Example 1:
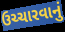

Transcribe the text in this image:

ઉચ્ચારવાનું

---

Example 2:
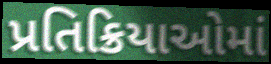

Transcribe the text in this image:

પ્રતિક્રિયાઓમાં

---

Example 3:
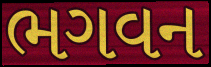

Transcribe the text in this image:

ભગવન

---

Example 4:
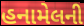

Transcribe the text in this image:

હનામેલની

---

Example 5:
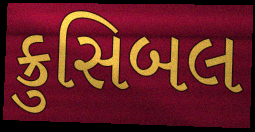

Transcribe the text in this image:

ક્રુસિબલ